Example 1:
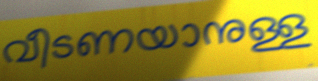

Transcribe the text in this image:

വീടണയാനുള്ള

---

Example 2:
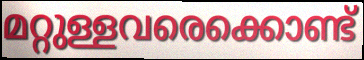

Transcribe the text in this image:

മറ്റുള്ളവരെക്കൊണ്ട്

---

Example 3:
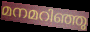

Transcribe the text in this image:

മനമറിഞ്ഞു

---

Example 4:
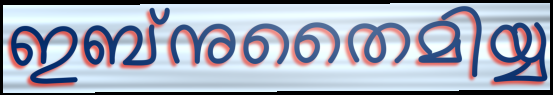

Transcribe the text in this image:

ഇബ്നുതൈമിയ്യ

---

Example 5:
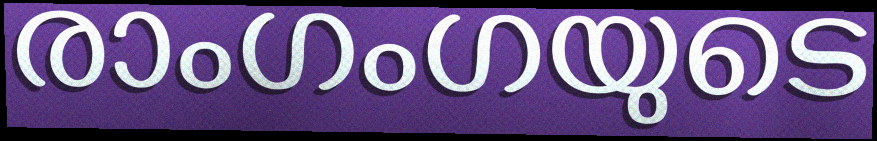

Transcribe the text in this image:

രാംഗംഗയുടെ